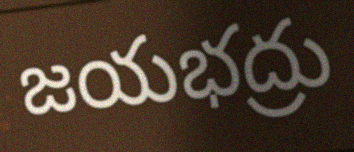
జయభద్రు